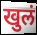
खुलं